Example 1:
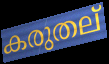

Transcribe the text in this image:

കരുതല്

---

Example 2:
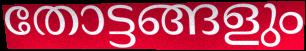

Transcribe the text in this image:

തോട്ടങ്ങളും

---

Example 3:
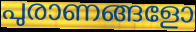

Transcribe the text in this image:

പുരാണങ്ങളോ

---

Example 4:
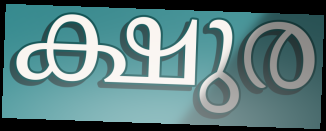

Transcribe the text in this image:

ക്ഷുര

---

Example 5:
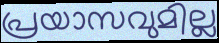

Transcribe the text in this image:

പ്രയാസവുമില്ല